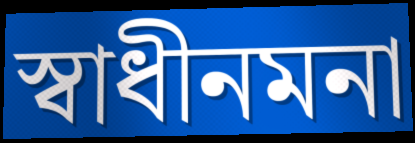
স্বাধীনমনা